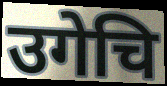
उगेचि